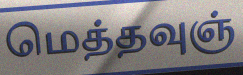
மெத்தவுஞ்